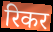
रिकर